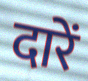
दारें